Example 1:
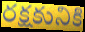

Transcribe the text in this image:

రక్షకునికి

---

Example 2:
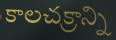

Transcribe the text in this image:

కాలచక్రాన్ని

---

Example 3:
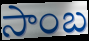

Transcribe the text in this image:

సాంబ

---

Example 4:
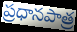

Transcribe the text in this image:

ప్రధానపాత్ర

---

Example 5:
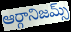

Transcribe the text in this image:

ఆర్గానిజమ్స్